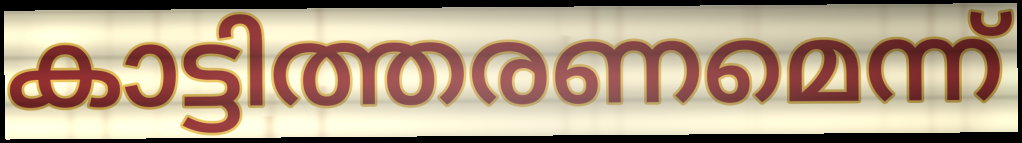
കാട്ടിത്തരണമെന്ന്